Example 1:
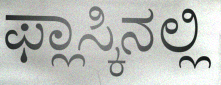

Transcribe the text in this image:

ಫ್ಲಾಸ್ಕಿನಲ್ಲಿ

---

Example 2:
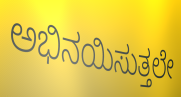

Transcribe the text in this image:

ಅಭಿನಯಿಸುತ್ತಲೇ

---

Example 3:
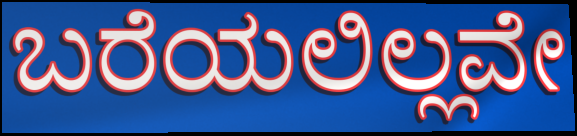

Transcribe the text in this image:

ಬರೆಯಲಿಲ್ಲವೇ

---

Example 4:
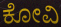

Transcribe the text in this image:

ಕೋವಿ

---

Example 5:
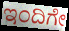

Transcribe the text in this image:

ಇಂದಿಗೇ